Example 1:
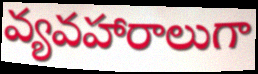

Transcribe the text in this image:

వ్యవహారాలుగా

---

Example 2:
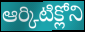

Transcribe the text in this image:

ఆర్కిటిక్లోని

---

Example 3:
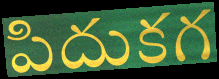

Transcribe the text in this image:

పిదుకగ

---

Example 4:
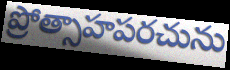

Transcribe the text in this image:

ప్రోత్సాహపరచును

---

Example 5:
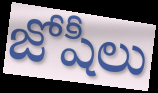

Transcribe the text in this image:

జోషీలు